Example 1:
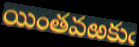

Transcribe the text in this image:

యింతవఱకుఁ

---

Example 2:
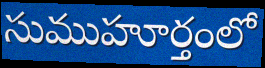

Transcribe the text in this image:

సుముహూర్తంలో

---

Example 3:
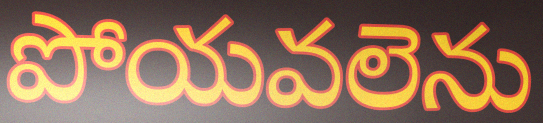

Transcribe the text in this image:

పోయవలెను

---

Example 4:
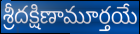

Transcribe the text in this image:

శ్రీదక్షిణామూర్తయే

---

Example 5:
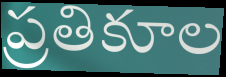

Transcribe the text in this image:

ప్రతికూల